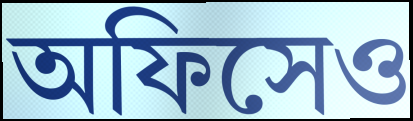
অফিসেও